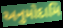
અનુમોદામિ